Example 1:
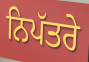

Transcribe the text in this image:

ਨਿਪੱਤਰੇ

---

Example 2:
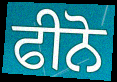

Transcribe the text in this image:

ਫੀਨੋ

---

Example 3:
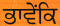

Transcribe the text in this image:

ਭਾਵੇਂਕਿ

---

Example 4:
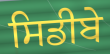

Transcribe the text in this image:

ਸਿਡੀਬੇ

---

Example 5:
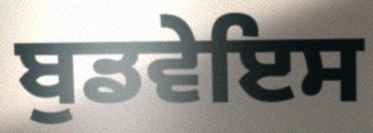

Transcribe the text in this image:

ਬੁਡਵੇਇਸ